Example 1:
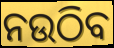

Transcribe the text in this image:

ନଉଠିବ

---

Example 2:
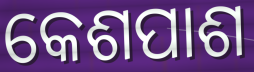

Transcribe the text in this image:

କେଶପାଶ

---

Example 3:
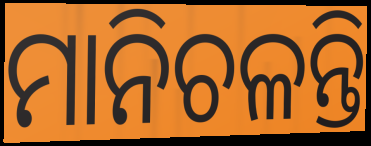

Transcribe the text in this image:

ମାନିଚଳନ୍ତି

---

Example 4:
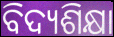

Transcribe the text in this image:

ବିଦ୍ୟଶିକ୍ଷା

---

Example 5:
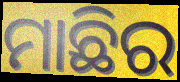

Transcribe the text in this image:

ମାଛିର